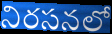
నిరసనలో